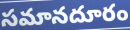
సమానదూరం